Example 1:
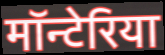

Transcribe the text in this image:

मॉन्टेरिया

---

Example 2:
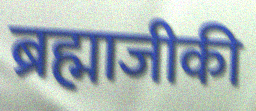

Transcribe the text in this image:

ब्रह्माजीकी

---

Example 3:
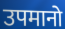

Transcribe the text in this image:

उपमानो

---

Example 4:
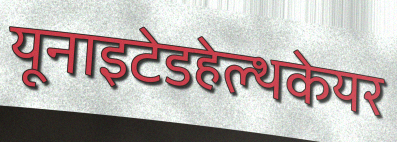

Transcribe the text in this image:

यूनाइटेडहेल्थकेयर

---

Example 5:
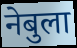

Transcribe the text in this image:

नेबुला